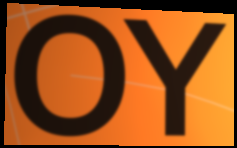
OY